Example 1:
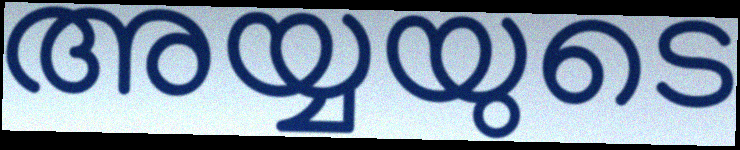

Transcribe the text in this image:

അയ്യയുടെ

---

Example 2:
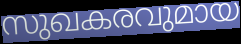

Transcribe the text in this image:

സുഖകരവുമായ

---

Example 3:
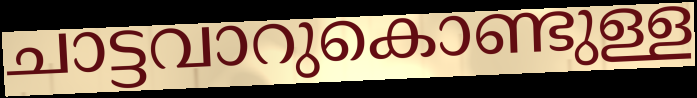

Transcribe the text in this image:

ചാട്ടവാറുകൊണ്ടുള്ള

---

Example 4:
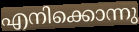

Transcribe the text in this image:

എനിക്കൊന്നു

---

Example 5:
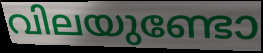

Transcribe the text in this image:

വിലയുണ്ടോ